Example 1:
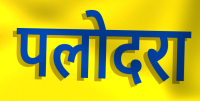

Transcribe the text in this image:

पलोदरा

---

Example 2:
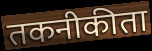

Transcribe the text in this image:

तकनीकीता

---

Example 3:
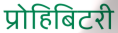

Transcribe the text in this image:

प्रोहिबिटरी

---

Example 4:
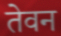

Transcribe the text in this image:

तेवन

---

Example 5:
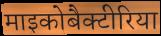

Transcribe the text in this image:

माइकोबैक्टीरिया